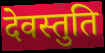
देवस्तुति